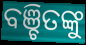
ବଞ୍ଚିତଙ୍କୁ